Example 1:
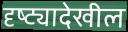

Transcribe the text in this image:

दृष्ट्यादेखील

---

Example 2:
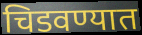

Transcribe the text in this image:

चिडवण्यात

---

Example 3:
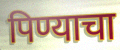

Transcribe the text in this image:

पिण्याचा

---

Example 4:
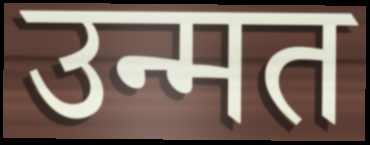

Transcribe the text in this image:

उन्मत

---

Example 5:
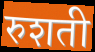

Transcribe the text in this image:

रुशती